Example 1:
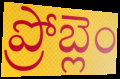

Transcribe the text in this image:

ప్రోబ్లెం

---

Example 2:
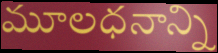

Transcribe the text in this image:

మూలధనాన్ని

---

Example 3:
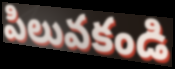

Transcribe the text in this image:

పిలువకండి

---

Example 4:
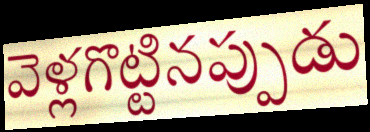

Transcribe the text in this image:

వెళ్లగొట్టినప్పుడు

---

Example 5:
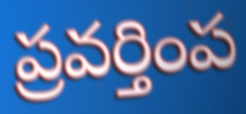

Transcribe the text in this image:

ప్రవర్తింప